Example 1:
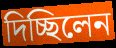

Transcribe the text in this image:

দিচ্ছিলেন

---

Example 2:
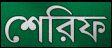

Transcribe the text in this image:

শেরিফ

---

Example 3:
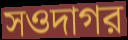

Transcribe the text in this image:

সওদাগর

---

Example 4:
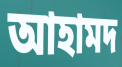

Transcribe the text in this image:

আহামদ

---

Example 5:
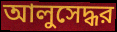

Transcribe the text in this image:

আলুসেদ্ধর